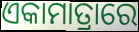
ଏକାମାତ୍ରାରେ